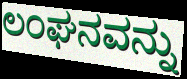
ಲಂಘನವನ್ನು